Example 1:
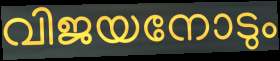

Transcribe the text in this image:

വിജയനോടും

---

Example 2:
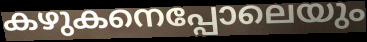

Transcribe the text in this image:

കഴുകനെപ്പോലെയും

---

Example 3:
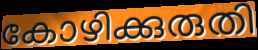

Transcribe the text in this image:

കോഴിക്കുരുതി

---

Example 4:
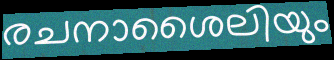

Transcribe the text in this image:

രചനാശൈലിയും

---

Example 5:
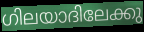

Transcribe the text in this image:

ഗിലയാദിലേക്കു